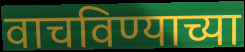
वाचविण्याच्या